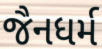
જૈનધર્મ